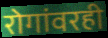
रोगांवरही